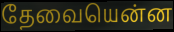
தேவையென்ன